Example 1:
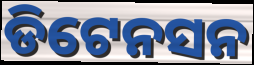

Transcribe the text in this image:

ଡିଟେନସନ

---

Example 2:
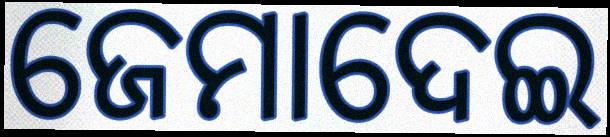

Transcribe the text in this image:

ଜେମାଦେଇ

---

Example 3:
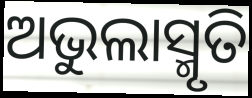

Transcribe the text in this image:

ଅଭୁଲାସ୍ମୃତି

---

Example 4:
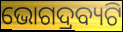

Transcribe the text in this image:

ଭୋଗଦ୍ରବ୍ୟଟି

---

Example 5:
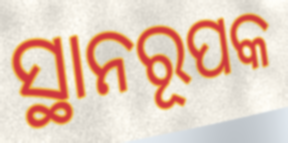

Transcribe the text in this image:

ସ୍ଥାନରୂପକ